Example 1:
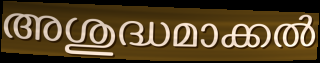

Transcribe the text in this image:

അശുദ്ധമാക്കൽ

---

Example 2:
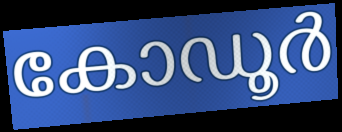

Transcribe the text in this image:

കോഡൂർ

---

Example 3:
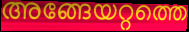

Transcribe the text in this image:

അങ്ങേയറ്റത്തെ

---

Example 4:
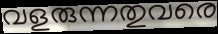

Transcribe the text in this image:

വളരുന്നതുവരെ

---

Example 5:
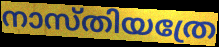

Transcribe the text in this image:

നാസ്തിയത്രേ